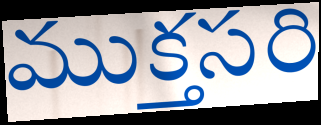
ముక్తసరి